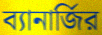
ব্যানার্জির